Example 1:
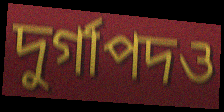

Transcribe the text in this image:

দুর্গাপদও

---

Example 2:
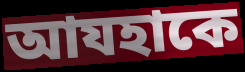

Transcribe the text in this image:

আযহাকে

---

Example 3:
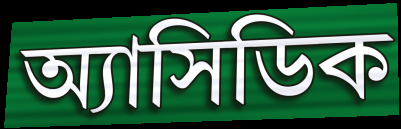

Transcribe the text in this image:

অ্যাসিডিক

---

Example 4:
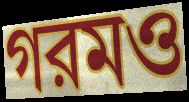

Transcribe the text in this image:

গরমও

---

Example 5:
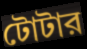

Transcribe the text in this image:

টোটার